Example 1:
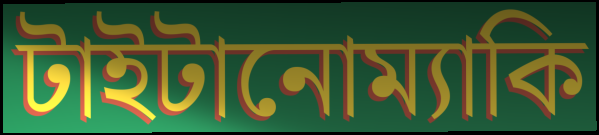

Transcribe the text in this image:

টাইটানোম্যাকি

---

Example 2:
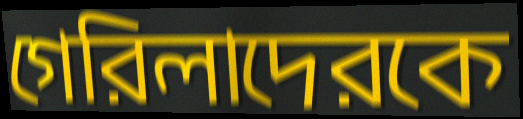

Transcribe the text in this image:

গেরিলাদেরকে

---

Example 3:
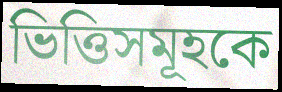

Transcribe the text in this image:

ভিত্তিসমূহকে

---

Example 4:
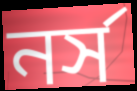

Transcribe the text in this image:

নর্স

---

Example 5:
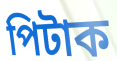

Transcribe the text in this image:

পিটাক